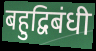
बहुद्विबंधी